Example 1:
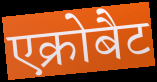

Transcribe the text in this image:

एक्रोबैट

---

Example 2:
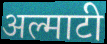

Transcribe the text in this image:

अल्माटी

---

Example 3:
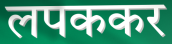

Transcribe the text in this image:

लपककर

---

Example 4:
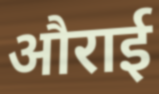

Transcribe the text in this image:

औराई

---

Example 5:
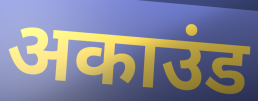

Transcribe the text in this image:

अकाउंड